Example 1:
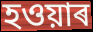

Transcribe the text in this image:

হওয়াৰ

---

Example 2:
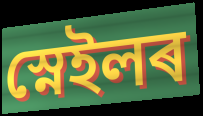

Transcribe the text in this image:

স্নেইলৰ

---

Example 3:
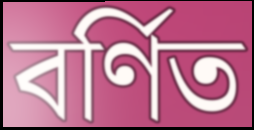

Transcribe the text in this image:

বৰ্ণিত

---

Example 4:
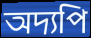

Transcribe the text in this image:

অদ্যপি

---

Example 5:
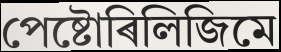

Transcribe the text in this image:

পেষ্টোৰিলিজিমে